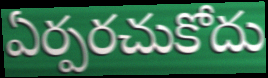
ఏర్పరచుకోదు